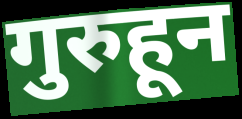
गुरुहून